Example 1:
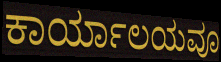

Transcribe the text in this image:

ಕಾರ್ಯಾಲಯವೂ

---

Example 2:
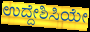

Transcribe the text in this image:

ಉದ್ದೇಶಿಸಿಯೇ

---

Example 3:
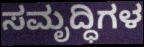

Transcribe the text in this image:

ಸಮೃದ್ಧಿಗಳ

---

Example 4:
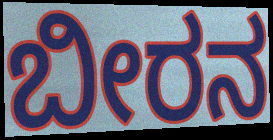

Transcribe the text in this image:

ಬೀರನ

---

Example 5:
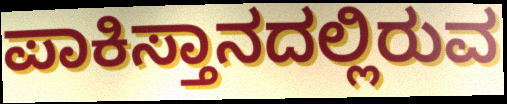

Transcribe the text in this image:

ಪಾಕಿಸ್ತಾನದಲ್ಲಿರುವ